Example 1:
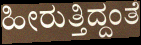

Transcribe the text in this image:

ಹೀರುತ್ತಿದ್ದಂತೆ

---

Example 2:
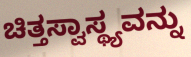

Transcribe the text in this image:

ಚಿತ್ತಸ್ವಾಸ್ಥ್ಯವನ್ನು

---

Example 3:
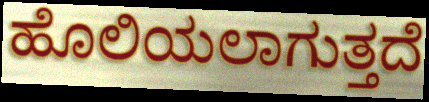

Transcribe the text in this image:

ಹೊಲಿಯಲಾಗುತ್ತದೆ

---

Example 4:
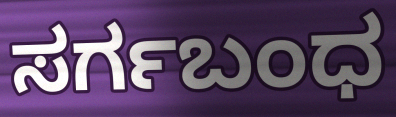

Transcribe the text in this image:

ಸರ್ಗಬಂಧ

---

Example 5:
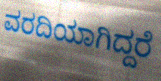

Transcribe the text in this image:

ವರದಿಯಾಗಿದ್ದರೆ